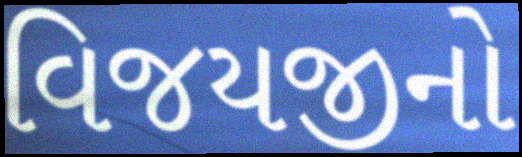
વિજયજીનો